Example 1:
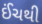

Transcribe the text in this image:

ઈંચથી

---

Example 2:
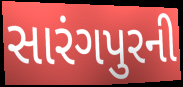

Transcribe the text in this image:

સારંગપુરની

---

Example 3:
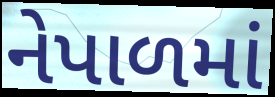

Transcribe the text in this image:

નેપાળમાં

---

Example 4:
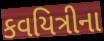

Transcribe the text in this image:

કવયિત્રીના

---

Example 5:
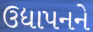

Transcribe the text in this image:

ઉદ્યાપનને